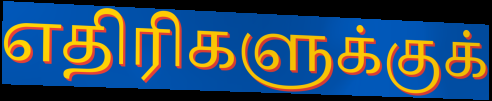
எதிரிகளுக்குக்